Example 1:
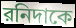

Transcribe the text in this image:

রনিদাকে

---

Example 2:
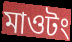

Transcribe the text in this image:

মাওটং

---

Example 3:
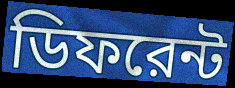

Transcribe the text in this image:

ডিফরেন্ট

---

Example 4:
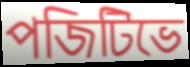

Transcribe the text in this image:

পজিটিভে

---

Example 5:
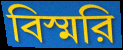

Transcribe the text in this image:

বিস্মরি